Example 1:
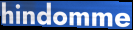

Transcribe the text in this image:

hindomme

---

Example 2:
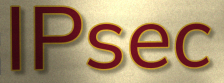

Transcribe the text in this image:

IPsec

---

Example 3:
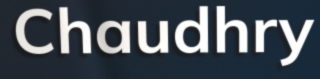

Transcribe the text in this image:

Chaudhry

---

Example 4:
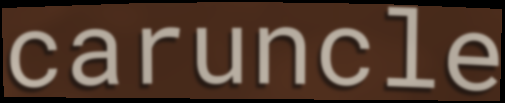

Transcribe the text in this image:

caruncle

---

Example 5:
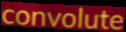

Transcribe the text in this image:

convolute